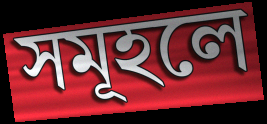
সমূহলে